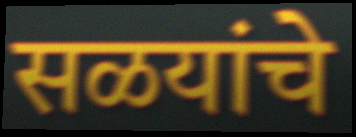
सळयांचे